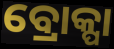
ବ୍ରୋକ୍ପା